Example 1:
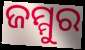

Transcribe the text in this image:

ଜମ୍ମୁର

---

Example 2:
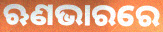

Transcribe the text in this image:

ଋଣଭାରରେ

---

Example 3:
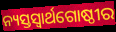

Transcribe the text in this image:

ନ୍ୟସ୍ତସ୍ୱାର୍ଥଗୋଷ୍ଠୀର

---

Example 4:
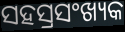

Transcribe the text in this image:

ସହସ୍ରସଂଖ୍ୟକ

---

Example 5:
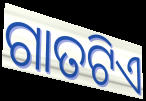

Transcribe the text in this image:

ଗାତଟିଏ